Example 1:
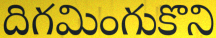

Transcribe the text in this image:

దిగమింగుకొని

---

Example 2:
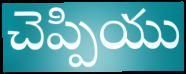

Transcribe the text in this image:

చెప్పియు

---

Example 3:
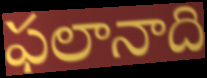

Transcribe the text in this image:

ఫలానాది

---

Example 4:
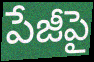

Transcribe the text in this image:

పేజీపై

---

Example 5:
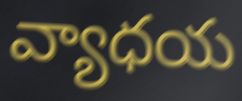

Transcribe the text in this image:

వ్యాధయ